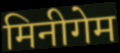
मिनीगेम